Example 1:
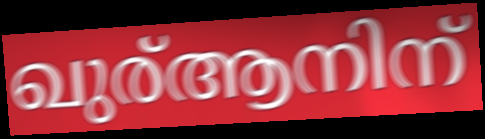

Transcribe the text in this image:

ഖുര്ആനിന്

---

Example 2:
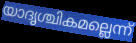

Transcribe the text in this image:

യാദൃശ്ചികമല്ലെന്ന്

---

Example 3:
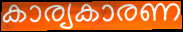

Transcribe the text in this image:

കാര്യകാരണ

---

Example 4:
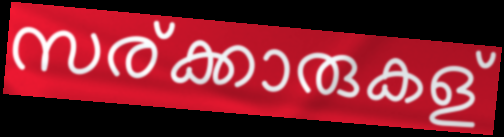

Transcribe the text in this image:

സര്ക്കാരുകള്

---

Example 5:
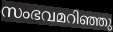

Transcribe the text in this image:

സംഭവമറിഞ്ഞു